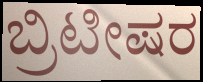
ಬ್ರಿಟೀಷರ